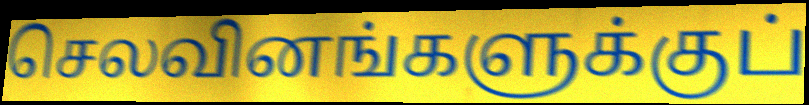
செலவினங்களுக்குப்